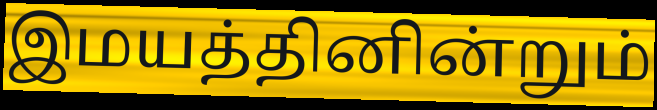
இமயத்தினின்றும்